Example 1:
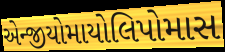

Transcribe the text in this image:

એન્જીયોમાયોલિપોમાસ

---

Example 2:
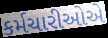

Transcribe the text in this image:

કર્મચારીઓએ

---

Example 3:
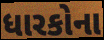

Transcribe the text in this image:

ધારકોના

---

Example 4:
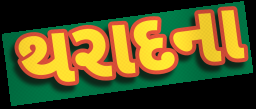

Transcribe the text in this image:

થરાદના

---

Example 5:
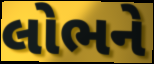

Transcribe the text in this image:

લોભને